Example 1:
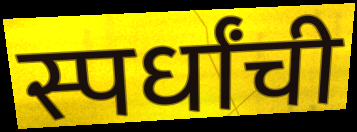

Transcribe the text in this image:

स्पर्धांची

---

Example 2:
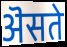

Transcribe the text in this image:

ऄसते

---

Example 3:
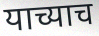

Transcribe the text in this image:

याच्याच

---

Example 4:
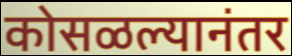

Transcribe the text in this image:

कोसळल्यानंतर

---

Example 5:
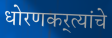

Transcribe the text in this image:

धोरणकर्त्यांचे